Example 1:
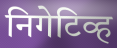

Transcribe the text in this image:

निगेटिव्ह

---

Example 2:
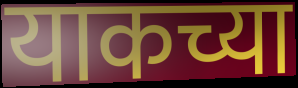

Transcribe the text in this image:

याकच्या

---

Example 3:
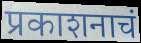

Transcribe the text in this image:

प्रकाशनाचं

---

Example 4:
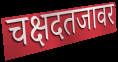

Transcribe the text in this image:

चक्षदतजावर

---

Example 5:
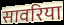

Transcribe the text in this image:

सावरिया